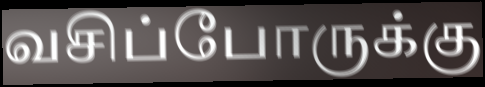
வசிப்போருக்கு